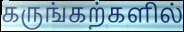
கருங்கற்களில்